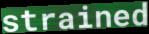
strained